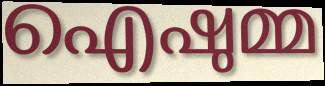
ഐഷുമ്മ